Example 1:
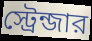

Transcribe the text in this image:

স্ট্রেন্জার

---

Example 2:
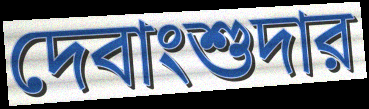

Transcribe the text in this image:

দেবাংশুদার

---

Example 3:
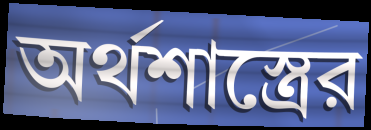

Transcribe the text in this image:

অর্থশাস্ত্রের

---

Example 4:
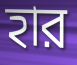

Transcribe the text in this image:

হার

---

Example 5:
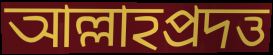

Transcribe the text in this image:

আল্লাহপ্রদত্ত